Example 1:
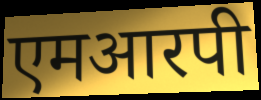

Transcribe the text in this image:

एमआरपी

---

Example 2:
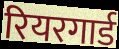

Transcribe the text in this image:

रियरगार्ड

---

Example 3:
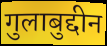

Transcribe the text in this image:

गुलाबुद्दीन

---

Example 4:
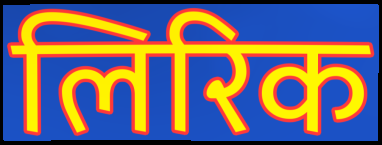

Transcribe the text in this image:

लिरिक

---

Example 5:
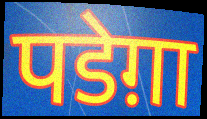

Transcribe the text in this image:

पडेग़ा